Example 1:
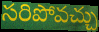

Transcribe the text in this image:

సరిపోవచ్చు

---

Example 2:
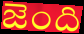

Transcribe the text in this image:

జెంది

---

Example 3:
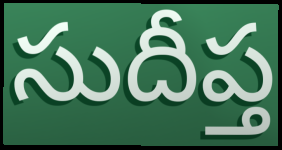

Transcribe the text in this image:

సుదీప్త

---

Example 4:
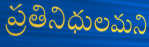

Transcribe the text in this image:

ప్రతినిధులమని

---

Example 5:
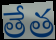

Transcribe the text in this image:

తేత